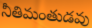
నీతిమంతుడవు